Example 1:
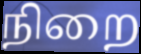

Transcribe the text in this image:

நிறை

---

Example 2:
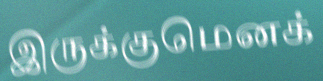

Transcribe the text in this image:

இருக்குமெனக்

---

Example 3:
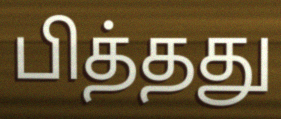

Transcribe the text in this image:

பித்தது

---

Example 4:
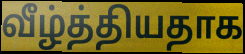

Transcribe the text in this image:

வீழ்த்தியதாக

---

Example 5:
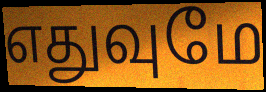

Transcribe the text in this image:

எதுவுமே